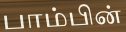
பாம்பின்